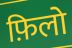
फ़िलो